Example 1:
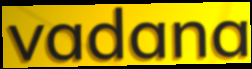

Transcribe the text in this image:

vadana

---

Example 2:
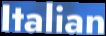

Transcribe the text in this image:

Italian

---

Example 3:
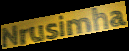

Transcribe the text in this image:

Nrusimha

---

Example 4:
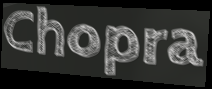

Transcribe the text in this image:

Chopra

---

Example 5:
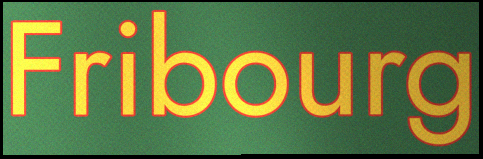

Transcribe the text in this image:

Fribourg